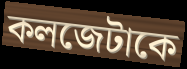
কলজেটাকে